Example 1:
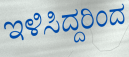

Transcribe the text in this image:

ಇಳಿಸಿದ್ದರಿಂದ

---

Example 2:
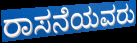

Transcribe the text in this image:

ರಾಸನೆಯವರು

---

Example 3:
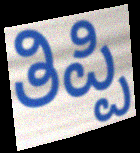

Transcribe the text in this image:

ತಿಪ್ಪಿ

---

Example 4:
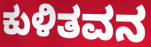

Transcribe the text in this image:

ಕುಳಿತವನ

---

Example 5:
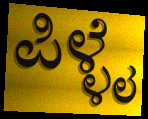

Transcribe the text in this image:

ಪಿಳ್ಳೈ